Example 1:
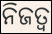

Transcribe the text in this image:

ନିଜତ୍ବ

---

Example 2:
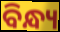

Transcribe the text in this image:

ବିନ୍ଧ୍ୟ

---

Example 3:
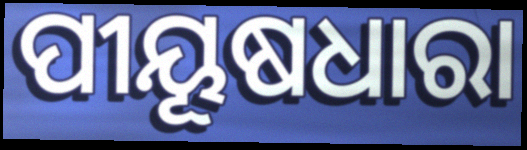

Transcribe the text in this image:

ପୀୟୂଷଧାରା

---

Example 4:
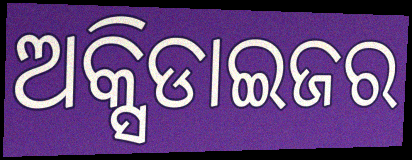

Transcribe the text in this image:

ଅକ୍ସିଡାଇଜର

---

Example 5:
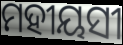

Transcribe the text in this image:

ମହୀୟସୀ